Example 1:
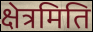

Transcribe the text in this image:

क्षेत्रमिति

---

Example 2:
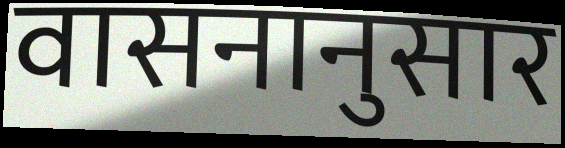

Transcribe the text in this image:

वासनानुसार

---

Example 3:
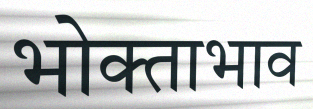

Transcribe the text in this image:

भोक्ताभाव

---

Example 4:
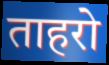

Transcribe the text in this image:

ताहरो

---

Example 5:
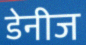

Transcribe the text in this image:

डेनीज